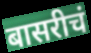
बासरीचं